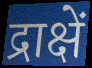
द्राक्षें